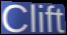
Clift